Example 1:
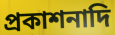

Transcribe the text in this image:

প্রকাশনাদি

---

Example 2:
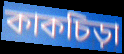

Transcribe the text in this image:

কাকচিড়া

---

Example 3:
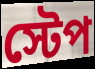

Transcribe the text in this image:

স্টেপ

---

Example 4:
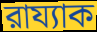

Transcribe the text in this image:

রায্যাক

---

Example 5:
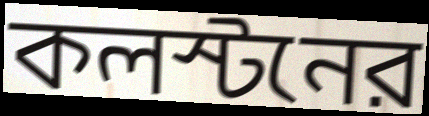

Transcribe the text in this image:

কলস্টনের